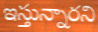
ఇస్తున్నారని